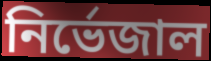
নির্ভেজাল